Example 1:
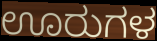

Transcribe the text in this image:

ಊರುಗಳ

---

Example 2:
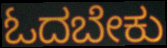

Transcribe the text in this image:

ಓದಬೇಕು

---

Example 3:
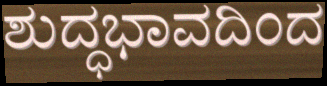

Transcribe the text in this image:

ಶುದ್ಧಭಾವದಿಂದ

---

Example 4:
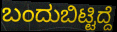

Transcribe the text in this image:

ಬಂದುಬಿಟ್ಟಿದ್ದೆ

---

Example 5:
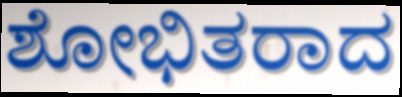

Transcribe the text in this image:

ಶೋಭಿತರಾದ